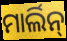
ମାର୍ଲିନ୍